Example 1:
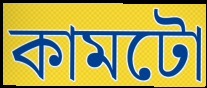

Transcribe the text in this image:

কামটো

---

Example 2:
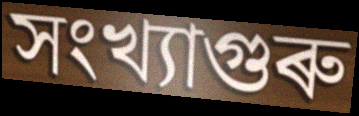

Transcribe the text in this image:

সংখ্যাগুৰু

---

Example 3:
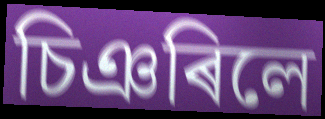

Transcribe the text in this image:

চিঞৰিলে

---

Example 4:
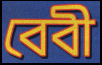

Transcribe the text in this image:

বেবী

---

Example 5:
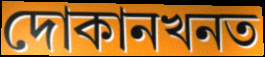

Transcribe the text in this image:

দোকানখনত